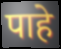
पाहे